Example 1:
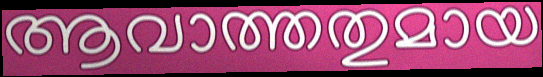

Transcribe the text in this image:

ആവാത്തതുമായ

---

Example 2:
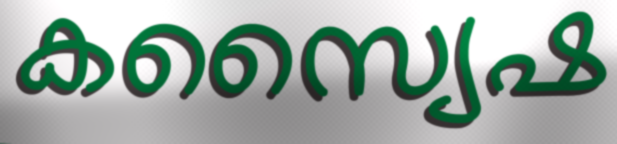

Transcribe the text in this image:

കസ്യൈഷ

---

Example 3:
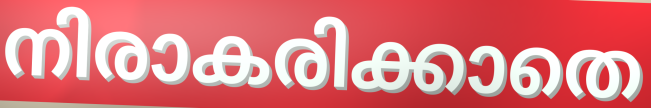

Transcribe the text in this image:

നിരാകരിക്കാതെ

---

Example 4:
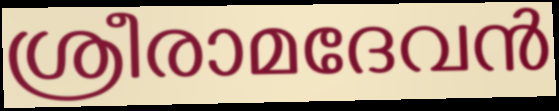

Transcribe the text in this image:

ശ്രീരാമദേവൻ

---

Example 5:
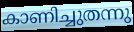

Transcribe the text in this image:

കാണിച്ചുതന്നു